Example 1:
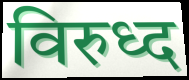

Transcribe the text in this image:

विरुध्द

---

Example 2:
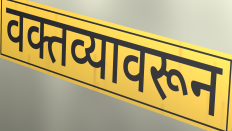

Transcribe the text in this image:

वक्तव्यावरून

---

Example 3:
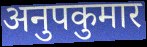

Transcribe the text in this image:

अनुपकुमार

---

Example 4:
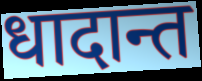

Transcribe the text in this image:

धादान्त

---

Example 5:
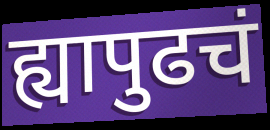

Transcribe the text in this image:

ह्यापुढचं